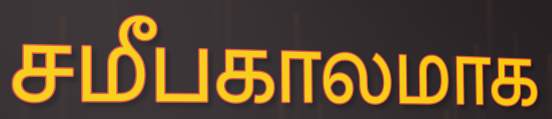
சமீபகாலமாக